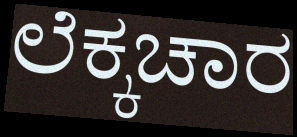
ಲೆಕ್ಕಚಾರ